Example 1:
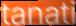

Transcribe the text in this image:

tanati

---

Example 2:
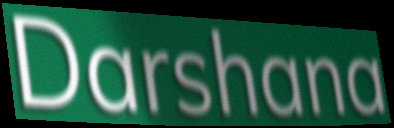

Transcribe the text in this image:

Darshana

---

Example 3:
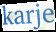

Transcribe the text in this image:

karje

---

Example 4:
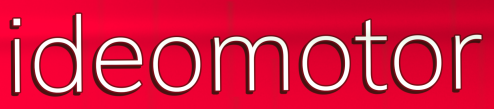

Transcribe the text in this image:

ideomotor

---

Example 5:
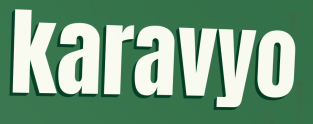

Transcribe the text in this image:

karavyo